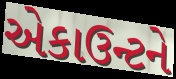
એકાઉન્ટને